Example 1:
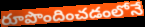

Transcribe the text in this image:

రూపొందించడంలోనే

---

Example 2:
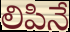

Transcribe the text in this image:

లిపినే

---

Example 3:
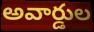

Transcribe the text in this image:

అవార్డుల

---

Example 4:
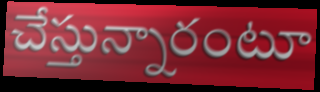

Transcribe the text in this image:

చేస్తున్నారంటూ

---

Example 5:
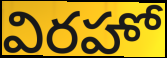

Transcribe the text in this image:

విరహో